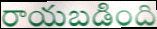
రాయబడింది